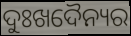
ଦୁଃଖଦୈନ୍ୟର